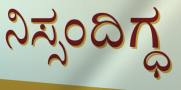
ನಿಸ್ಸಂದಿಗ್ಧ